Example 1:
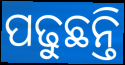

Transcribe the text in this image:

ପଢୁଛନ୍ତି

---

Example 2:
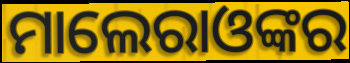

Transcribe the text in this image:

ମାଲେରାଓଙ୍କର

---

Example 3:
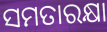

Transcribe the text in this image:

ସମତାରକ୍ଷା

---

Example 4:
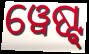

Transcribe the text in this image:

ୱେଷ୍ଟ୍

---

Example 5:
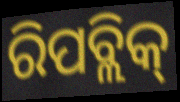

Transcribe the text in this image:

ରିପବ୍ଲିକ୍